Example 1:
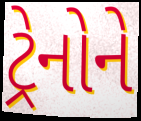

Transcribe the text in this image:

ટ્રેનોને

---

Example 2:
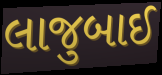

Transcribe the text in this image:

લાજુબાઈ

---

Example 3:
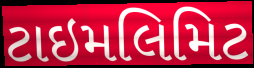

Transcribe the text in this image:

ટાઇમલિમિટ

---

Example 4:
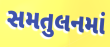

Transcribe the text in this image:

સમતુલનમાં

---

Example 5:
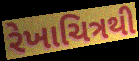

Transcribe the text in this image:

રેખાચિત્રથી